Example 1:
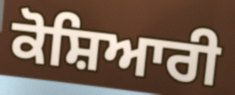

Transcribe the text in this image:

ਕੋਸ਼ਿਆਰੀ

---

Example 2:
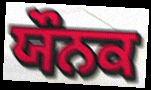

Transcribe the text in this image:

ਯੌਨਕ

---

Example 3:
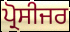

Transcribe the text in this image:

ਪ੍ਰੋਸੀਜਰ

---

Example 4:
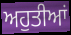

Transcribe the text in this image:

ਅਹੁਤੀਆਂ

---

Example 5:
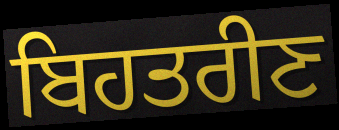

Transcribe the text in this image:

ਬਿਹਤਰੀਣ